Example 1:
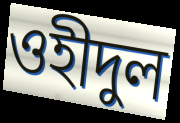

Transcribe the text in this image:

ওহীদুল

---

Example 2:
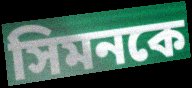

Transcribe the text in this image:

সিমনকে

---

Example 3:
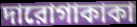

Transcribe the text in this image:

দারোগাকাকা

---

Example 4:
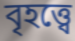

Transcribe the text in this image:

বৃহত্ত্বে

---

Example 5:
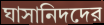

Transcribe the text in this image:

ঘাসানিদদের